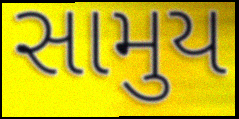
સામુય